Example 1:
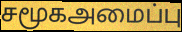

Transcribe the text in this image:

சமூகஅமைப்பு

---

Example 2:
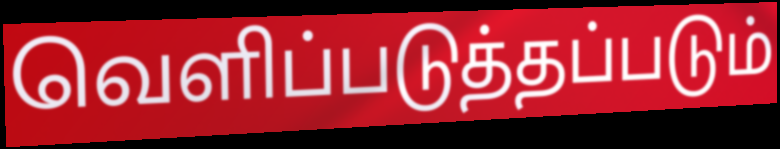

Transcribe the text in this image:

வெளிப்படுத்தப்படும்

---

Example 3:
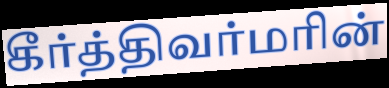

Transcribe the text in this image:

கீர்த்திவர்மரின்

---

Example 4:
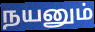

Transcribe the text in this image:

நயனும்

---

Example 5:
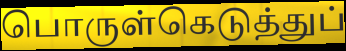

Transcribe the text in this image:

பொருள்கெடுத்துப்